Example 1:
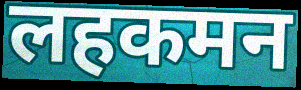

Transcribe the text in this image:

लहकमन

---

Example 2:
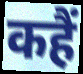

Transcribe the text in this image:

कहैं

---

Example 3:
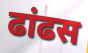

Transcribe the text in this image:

ढांढस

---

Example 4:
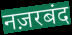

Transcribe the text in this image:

नज़रबंद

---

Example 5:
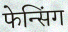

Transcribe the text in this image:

फेन्सिंग